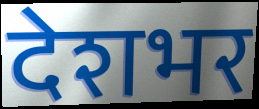
देशभर